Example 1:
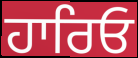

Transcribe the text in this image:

ਹਾਰਿਓ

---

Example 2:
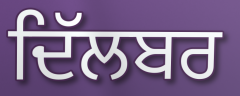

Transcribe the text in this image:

ਦਿੱਲਬਰ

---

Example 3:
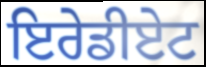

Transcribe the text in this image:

ਇਰੇਡੀਏਟ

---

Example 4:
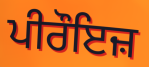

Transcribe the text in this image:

ਪੀਰੌਇਜ਼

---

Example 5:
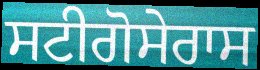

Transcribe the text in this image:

ਸਟੀਗੋਸੇਰਾਸ